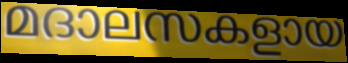
മദാലസകളായ